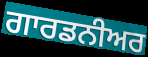
ਗਾਰਡਨੀਅਰ